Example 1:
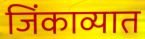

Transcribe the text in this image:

जिंकाव्यात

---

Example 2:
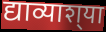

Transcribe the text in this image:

द्याव्याश्या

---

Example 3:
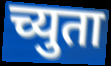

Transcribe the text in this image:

च्युता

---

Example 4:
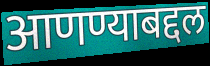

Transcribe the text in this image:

आणण्याबद्दल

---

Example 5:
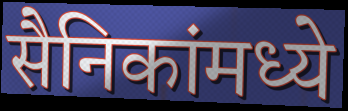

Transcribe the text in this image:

सैनिकांमध्ये